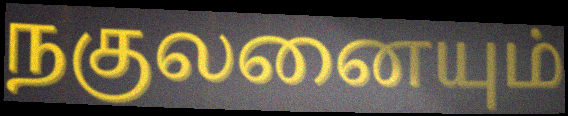
நகுலனையும்